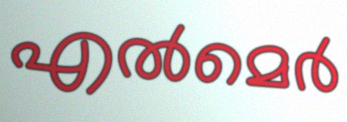
എൽമെർ